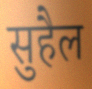
सुहैल